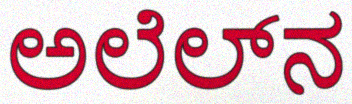
ಅಲೆಲ್‌ನ